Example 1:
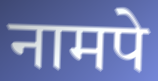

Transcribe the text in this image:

नामपे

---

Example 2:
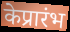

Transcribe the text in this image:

केप्रारंभ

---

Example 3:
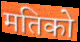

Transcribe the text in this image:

मतिको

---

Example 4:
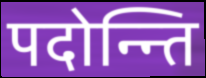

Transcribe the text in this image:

पदोन्न्ति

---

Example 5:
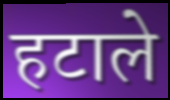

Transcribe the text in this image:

हटाले